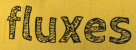
fluxes